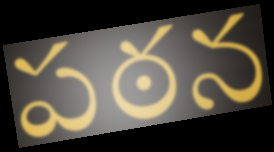
పఠన